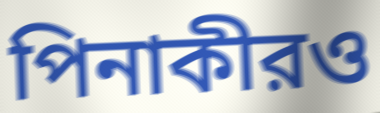
পিনাকীরও